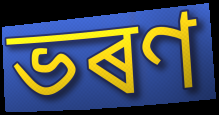
ভৰণ